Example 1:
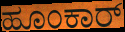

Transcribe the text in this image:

ಹೂಂಕಾರ್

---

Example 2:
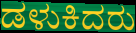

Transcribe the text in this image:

ಡಳುಕಿದರು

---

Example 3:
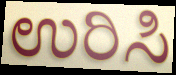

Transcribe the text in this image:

ಉರಿಸಿ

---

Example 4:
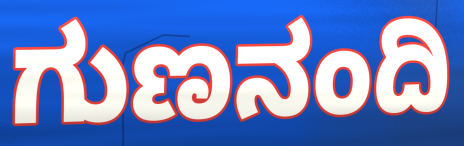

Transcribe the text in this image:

ಗುಣನಂದಿ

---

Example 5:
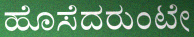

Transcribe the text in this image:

ಹೊಸೆದರುಂಟೇ